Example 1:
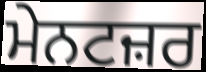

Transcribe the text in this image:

ਮੇਨਟਜ਼ਰ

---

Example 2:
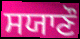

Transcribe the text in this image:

ਸਯਾਣੌ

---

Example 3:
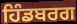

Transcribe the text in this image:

ਹਿੰਡਬਰਗ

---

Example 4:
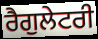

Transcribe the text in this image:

ਰੈਗੁਲੇਟਰੀ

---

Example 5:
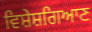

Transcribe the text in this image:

ਵਿਸ਼ੇਸ਼ਗਿਆਣ